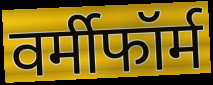
वर्मीफॉर्म